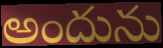
అందును